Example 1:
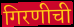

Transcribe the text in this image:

गिरणीची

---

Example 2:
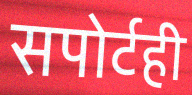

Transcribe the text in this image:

सपोर्टही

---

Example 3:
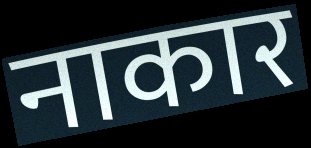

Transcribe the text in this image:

नाकार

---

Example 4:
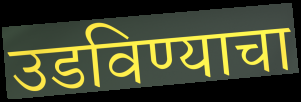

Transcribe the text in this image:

उडविण्याचा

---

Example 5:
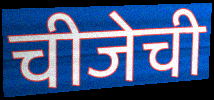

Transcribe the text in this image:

चीजेची